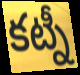
కట్నీ